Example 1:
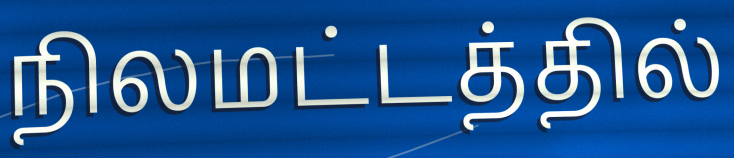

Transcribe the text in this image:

நிலமட்டத்தில்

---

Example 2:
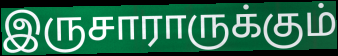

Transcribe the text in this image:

இருசாராருக்கும்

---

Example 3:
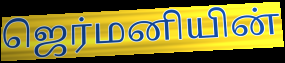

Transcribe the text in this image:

ஜெர்மனியின்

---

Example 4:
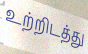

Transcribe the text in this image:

உற்றிடத்து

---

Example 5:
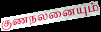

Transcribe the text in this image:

குணநலனையும்